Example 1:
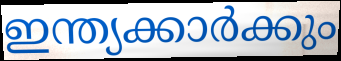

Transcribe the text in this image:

ഇന്ത്യക്കാർക്കും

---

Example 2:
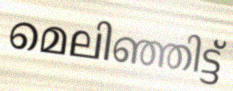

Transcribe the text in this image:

മെലിഞ്ഞിട്ട്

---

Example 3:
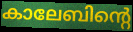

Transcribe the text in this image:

കാലേബിന്റെ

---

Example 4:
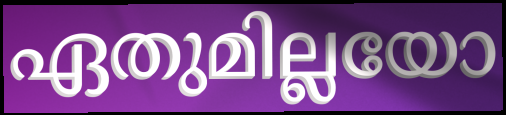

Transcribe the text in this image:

ഏതുമില്ലയോ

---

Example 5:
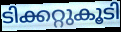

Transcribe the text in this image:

ടിക്കറ്റുകൂടി